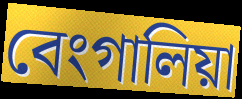
বেংগালিয়া